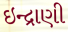
ઇન્દ્રાણી